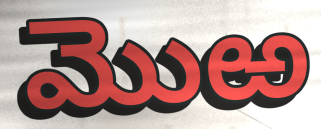
మొఱ